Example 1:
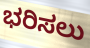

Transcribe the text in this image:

ಭರಿಸಲು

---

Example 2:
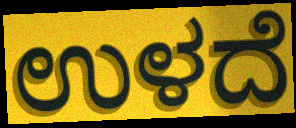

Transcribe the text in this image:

ಉಳದೆ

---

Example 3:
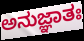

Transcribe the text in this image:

ಅನುಜ್ಞಾತಃ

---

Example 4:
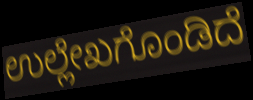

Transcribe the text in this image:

ಉಲ್ಲೇಖಗೊಂಡಿದೆ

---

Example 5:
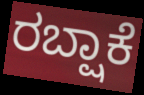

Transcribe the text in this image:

ರಬ್ಷಾಕೆ